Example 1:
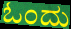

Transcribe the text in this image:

ಓಂದು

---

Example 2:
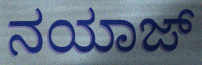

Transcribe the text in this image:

ನಯಾಜ್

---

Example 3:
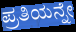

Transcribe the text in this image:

ಪ್ರತಿಯನ್ನೇ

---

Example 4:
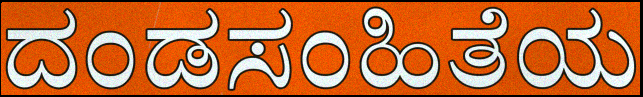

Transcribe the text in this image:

ದಂಡಸಂಹಿತೆಯ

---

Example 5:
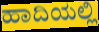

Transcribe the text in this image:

ಹಾದಿಯಲ್ಲಿ